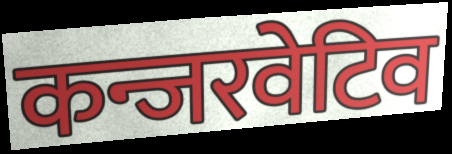
कन्जरवेटिव